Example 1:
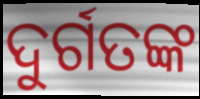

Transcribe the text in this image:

ଦୁର୍ଗତଙ୍କ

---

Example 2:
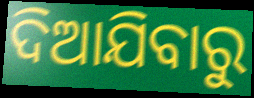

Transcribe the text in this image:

ଦିଆଯିବାରୁ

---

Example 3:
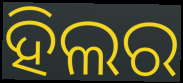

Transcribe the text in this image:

ହିଲର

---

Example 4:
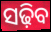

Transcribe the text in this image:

ସଢ଼ିବ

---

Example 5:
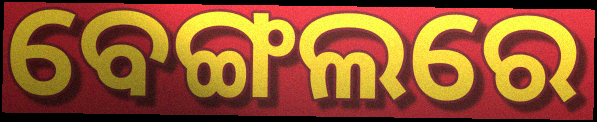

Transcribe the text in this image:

ବେଙ୍ଗଲରେ